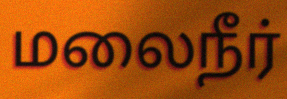
மலைநீர்